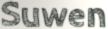
Suwen